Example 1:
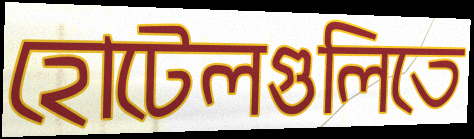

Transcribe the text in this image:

হোটেলগুলিতে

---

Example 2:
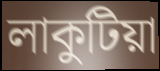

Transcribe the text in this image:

লাকুটিয়া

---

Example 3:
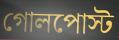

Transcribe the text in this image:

গোলপোস্ট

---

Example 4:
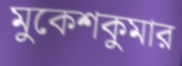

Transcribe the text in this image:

মুকেশকুমার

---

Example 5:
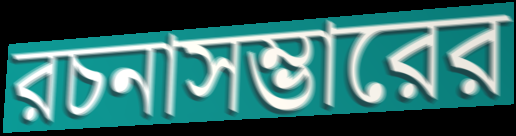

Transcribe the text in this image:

রচনাসম্ভারের